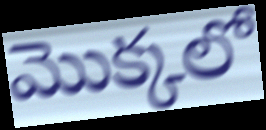
మొక్కలో